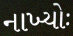
નાખ્યોઃ